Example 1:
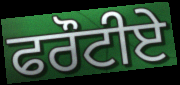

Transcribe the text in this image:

ਫਰੌਟੀਏ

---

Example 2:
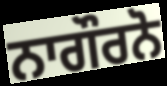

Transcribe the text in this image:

ਨਾਗੌਰਨੋ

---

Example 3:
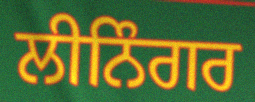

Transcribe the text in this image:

ਲੀਨਿੰਗਰ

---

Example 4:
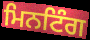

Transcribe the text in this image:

ਮਿਨਟਿੰਗ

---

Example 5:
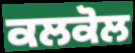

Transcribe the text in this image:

ਕਲਕੋਲ